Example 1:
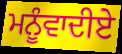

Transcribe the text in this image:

ਮਨੂੰਵਾਦੀਏ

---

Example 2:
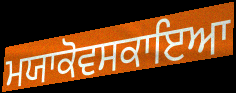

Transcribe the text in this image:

ਮਯਾਕੋਵਸਕਾਇਆ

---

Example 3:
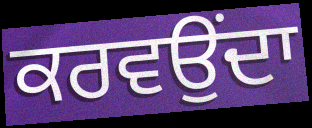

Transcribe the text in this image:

ਕਰਵਉਂਦਾ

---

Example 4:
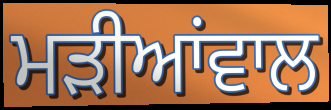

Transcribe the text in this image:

ਮੜੀਆਂਵਾਲ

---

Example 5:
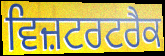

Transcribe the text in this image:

ਵਿਜ਼ਟਰਟਰੈਕ